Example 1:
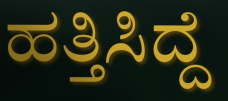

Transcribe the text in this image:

ಹತ್ತಿಸಿದ್ದೆ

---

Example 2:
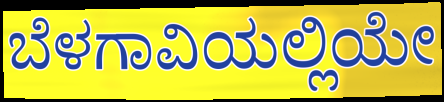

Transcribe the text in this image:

ಬೆಳಗಾವಿಯಲ್ಲಿಯೇ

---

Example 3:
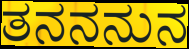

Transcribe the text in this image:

ತನನನುನ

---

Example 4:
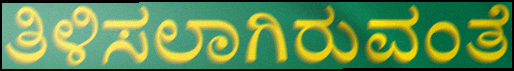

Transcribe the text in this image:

ತಿಳಿಸಲಾಗಿರುವಂತೆ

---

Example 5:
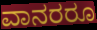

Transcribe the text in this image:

ವಾನರರೂ